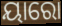
ୟାରୋ